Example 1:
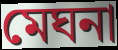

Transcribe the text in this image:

মেঘনা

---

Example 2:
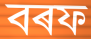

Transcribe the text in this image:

বৰফ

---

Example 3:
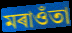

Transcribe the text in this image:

মৰাওঁতা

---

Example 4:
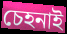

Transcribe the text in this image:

চেহনাই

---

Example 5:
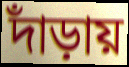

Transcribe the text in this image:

দাঁড়ায়